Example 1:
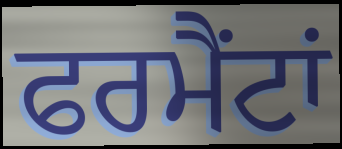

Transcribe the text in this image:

ਫਰਮੈਂਟਾਂ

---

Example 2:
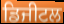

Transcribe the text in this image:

ਡਿਜੀਟਲ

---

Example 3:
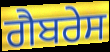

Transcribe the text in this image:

ਗੈਬਰੇਸ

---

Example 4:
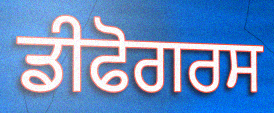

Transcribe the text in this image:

ਡੀਫੋਗਰਸ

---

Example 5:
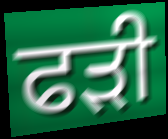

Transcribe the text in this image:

ਫੜੀ